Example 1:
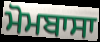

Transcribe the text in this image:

ਮੋਮਬਾਸਾ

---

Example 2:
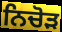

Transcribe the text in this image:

ਨਿਚੋਡ਼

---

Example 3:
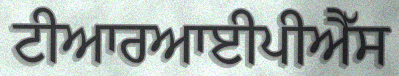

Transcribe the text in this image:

ਟੀਆਰਆਈਪੀਐੱਸ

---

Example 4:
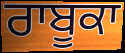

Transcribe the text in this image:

ਰਾਬੂਕਾ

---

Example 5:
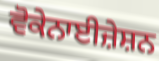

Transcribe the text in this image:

ਵੋਕੇਨਾਈਜ਼ੇਸ਼ਨ